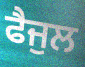
ਫੈਜੁਲ